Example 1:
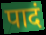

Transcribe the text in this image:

पादं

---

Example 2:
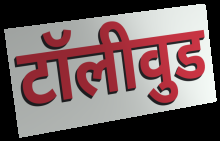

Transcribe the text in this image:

टॉलीवुड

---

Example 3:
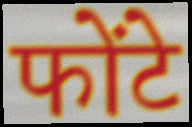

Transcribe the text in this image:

फोंटे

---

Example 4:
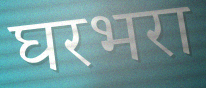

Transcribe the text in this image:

घरभरा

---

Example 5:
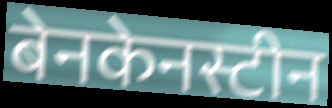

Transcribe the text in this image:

बेनकेनस्टीन